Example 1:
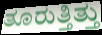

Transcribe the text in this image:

ತೂರುತ್ತಿತ್ತು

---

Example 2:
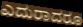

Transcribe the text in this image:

ಎದುರಾದರೂ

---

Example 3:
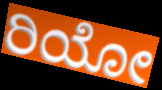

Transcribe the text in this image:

ರಿಯೋ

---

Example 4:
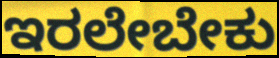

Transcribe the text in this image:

ಇರಲೇಬೇಕು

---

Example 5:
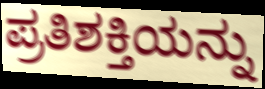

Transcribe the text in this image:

ಪ್ರತಿಶಕ್ತಿಯನ್ನು